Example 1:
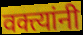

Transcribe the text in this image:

वक्त्यांनी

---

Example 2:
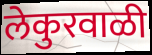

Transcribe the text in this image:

लेकुरवाळी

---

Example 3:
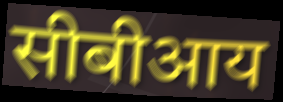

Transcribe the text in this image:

सीबीआय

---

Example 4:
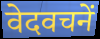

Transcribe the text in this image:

वेदवचनें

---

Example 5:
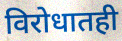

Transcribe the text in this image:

विरोधातही